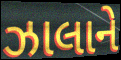
ઝાલાને